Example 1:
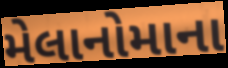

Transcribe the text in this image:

મેલાનોમાના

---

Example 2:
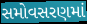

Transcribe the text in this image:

સમોવસરણમાં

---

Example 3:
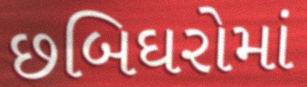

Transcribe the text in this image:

છબિઘરોમાં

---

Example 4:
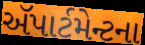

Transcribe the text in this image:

ઍપાર્ટમેન્ટના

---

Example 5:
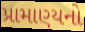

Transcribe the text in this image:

પ્રામાણ્યનો